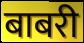
बाबरी